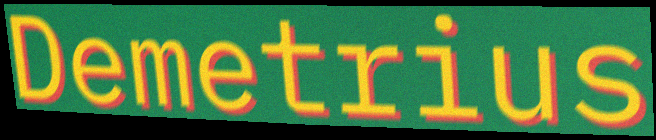
Demetrius